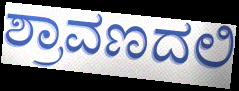
ಶ್ರಾವಣದಲಿ